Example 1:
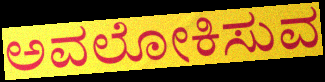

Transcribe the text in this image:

ಅವಲೋಕಿಸುವ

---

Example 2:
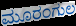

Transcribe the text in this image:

ಮೂರಂಗುಲ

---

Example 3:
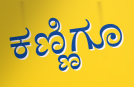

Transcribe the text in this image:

ಕಣ್ಣಿಗೂ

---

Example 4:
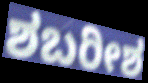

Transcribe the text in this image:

ಶಬರೀಶ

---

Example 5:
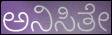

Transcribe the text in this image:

ಅನಿಸಿತೇ